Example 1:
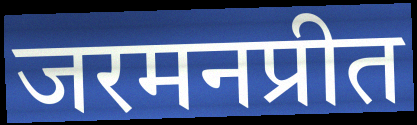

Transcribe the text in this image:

जरमनप्रीत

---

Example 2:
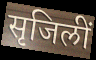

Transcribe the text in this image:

सृजिलीं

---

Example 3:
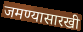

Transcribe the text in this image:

जमण्यासारखी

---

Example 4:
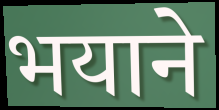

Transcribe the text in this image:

भयाने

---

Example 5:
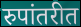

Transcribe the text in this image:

रुपांतरीत